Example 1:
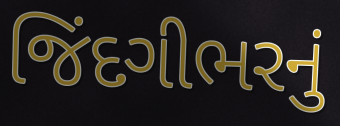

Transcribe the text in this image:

જિંદગીભરનું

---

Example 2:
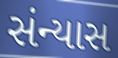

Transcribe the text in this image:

સંન્યાસ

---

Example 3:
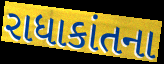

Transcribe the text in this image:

રાધાકાંતના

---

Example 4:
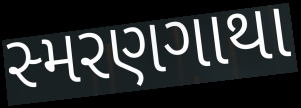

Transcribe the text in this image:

સ્મરણગાથા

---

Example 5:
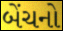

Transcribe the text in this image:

બેંચનો